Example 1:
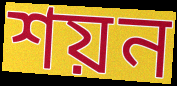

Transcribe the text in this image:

শয়ন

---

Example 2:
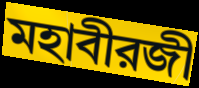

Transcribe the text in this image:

মহাবীরজী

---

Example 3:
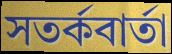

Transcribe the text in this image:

সতর্কবার্তা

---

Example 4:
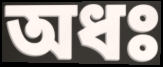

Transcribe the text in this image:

অধঃ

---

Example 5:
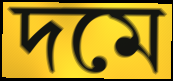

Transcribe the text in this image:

দমে